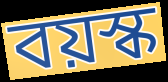
বয়স্ক